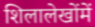
शिलालेखोंमें